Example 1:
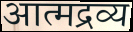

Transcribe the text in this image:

आत्मद्रव्य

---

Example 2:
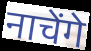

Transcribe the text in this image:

नाचेंगे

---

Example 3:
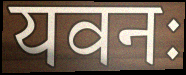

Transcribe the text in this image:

यवनः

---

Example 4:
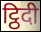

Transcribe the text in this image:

ट्ठिदी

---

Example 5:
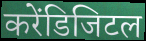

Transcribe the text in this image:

करेंडिजिटल